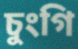
চুংগি